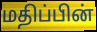
மதிப்பின்